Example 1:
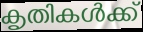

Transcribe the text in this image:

കൃതികൾക്ക്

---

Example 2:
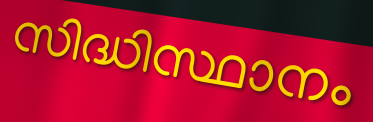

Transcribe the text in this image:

സിദ്ധിസ്ഥാനം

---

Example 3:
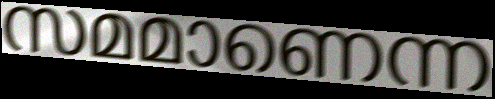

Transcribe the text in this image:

സമമാണെന്ന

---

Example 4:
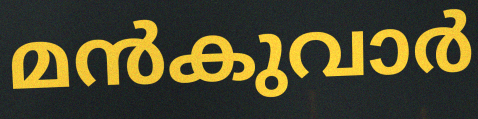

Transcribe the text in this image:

മൻകുവാർ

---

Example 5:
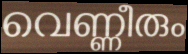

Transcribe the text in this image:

വെണ്ണീരും